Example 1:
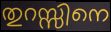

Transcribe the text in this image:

തുറസ്സിനെ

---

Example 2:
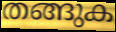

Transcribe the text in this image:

തങ്ങുക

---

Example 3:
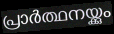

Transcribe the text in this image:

പ്രാർത്ഥനയ്ക്കും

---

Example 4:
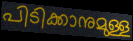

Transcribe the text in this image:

പിടിക്കാനുമുള്ള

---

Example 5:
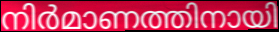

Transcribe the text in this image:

നിർമാണത്തിനായി